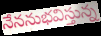
నేననుభవిస్తున్న